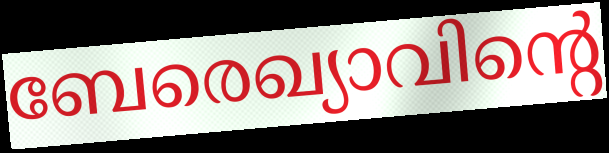
ബേരെഖ്യാവിന്റെ